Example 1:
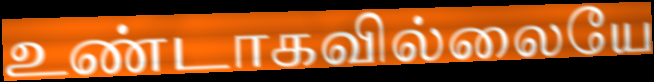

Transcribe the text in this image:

உண்டாகவில்லையே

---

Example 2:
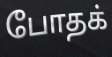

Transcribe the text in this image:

போதக்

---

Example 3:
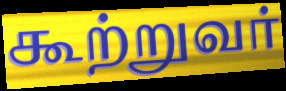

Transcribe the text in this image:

கூற்றுவர்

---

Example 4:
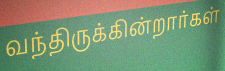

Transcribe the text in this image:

வந்திருக்கின்றார்கள்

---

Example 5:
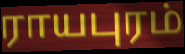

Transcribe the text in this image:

ராயபுரம்